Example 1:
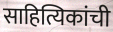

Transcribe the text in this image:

साहित्यिकांची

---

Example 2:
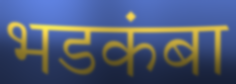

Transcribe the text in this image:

भडकंबा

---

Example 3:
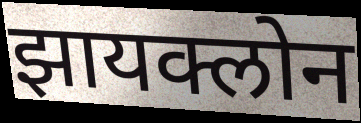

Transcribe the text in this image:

झायक्लोन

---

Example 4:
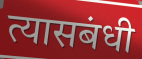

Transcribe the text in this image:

त्यासबंधी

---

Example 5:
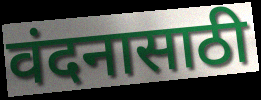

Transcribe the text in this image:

वंदनासाठी